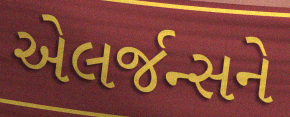
એલર્જન્સને